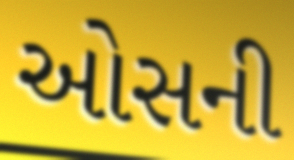
ઓસની